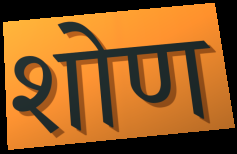
शोण